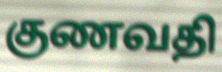
குணவதி